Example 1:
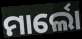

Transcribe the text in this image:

ମାର୍ଲୋ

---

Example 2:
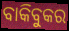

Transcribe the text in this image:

ବାକିବୁକର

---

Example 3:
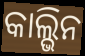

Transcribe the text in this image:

କାଲ୍ଭିନ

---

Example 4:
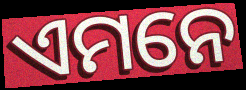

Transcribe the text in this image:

ଏମନେ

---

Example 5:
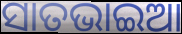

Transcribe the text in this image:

ସାତଭାଇଆ